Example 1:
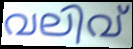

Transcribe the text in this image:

വലിവ്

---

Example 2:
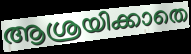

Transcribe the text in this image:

ആശ്രയിക്കാതെ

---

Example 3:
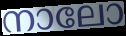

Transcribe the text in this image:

നാലോ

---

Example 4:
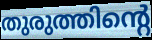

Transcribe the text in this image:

തുരുത്തിന്റെ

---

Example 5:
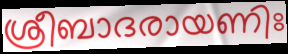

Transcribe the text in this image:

ശ്രീബാദരായണിഃ